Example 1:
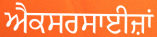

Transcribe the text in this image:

ਐਕਸਰਸਾਈਜ਼ਾਂ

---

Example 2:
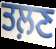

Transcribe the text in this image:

ਤਲ਼ਣ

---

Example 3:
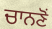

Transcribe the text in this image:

ਚਾਨਣੋਂ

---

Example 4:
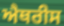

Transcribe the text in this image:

ਐਥਰੀਸ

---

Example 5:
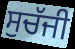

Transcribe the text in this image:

ਸੁਚੱਜੀ